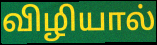
விழியால்